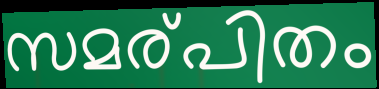
സമര്പിതം